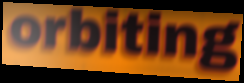
orbiting